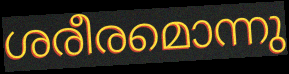
ശരീരമൊന്നു